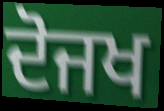
ਦੋਜਖ